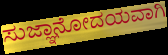
ಸುಜ್ಞಾನೋದಯವಾಗಿ